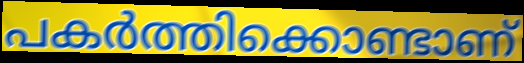
പകർത്തിക്കൊണ്ടാണ്